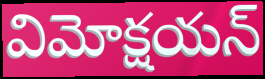
విమోక్షయన్